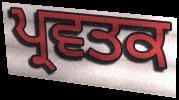
ਪ੍ਰਵਤਕ